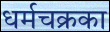
धर्मचक्रका